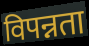
विपन्नता